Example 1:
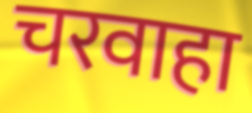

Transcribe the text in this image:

चरवाहा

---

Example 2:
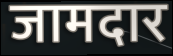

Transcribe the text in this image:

जामदार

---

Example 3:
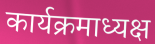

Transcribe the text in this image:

कार्यक्रमाध्यक्ष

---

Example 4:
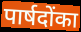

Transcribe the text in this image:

पार्षदोंका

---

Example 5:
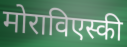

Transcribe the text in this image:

मोराविएस्की